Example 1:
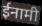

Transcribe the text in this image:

ईनामी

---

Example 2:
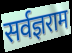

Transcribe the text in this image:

सर्वज्ञराम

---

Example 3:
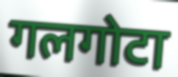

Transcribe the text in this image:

गलगोटा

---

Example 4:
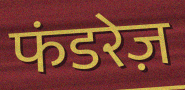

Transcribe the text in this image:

फंडरेज़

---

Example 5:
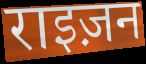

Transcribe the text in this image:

राइज़न